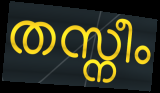
തസ്നീം